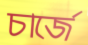
চার্জে